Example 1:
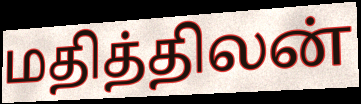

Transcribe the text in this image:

மதித்திலன்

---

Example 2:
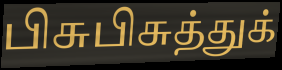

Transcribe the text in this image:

பிசுபிசுத்துக்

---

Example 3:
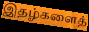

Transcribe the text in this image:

இதழ்களைத்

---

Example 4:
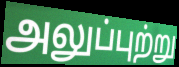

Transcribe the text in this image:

அலுப்புற்று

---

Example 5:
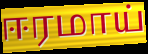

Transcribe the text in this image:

ஈரமாய்